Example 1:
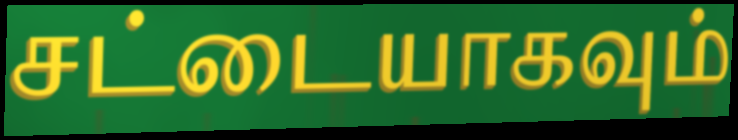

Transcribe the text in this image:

சட்டையாகவும்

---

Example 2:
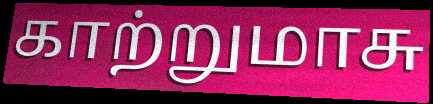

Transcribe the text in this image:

காற்றுமாசு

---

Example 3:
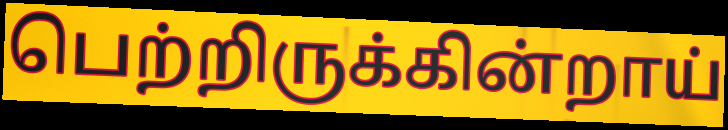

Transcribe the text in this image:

பெற்றிருக்கின்றாய்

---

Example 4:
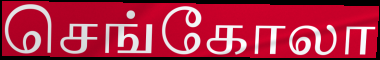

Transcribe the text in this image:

செங்கோலா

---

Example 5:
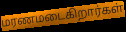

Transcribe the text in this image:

மரணமடைகிறார்கள்